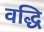
वद्धि